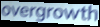
overgrowth